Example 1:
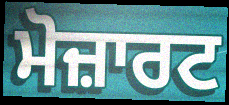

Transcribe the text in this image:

ਮੋਜ਼ਾਰਟ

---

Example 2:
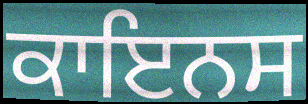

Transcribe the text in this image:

ਕਾਇਨਸ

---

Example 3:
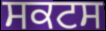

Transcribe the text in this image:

ਸਕਟਸ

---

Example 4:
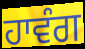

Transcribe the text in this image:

ਹਾਵੰਗ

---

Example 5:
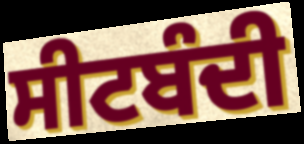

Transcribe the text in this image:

ਸੀਟਬੰਦੀ